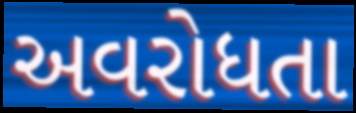
અવરોધતા